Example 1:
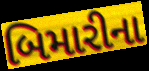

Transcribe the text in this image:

બિમારીના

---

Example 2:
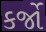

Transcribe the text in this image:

કર્જો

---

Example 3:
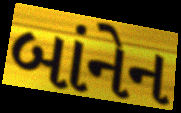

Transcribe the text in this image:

બાંનેન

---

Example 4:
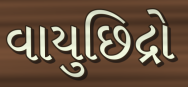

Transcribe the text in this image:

વાયુછિદ્રો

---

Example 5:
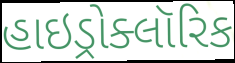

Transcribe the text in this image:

હાઇડ્રોક્લૉરિક